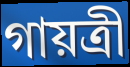
গায়ত্ৰী